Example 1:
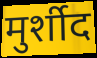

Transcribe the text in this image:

मुर्शीद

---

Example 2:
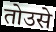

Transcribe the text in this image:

तोउसे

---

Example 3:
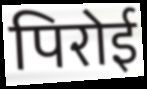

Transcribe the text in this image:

पिरोई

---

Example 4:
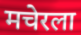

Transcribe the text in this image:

मचेरला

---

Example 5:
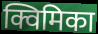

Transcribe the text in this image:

क्विमिका